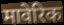
मावेरिक